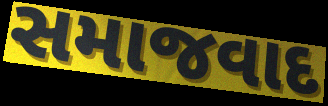
સમાજવાદ